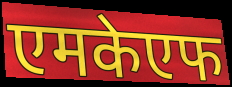
एमकेएफ